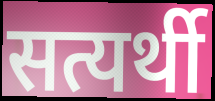
सत्यर्थी